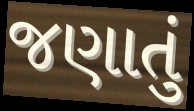
જણાતું